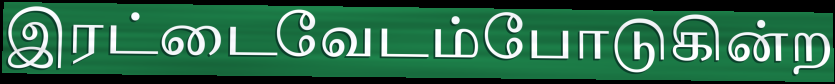
இரட்டைவேடம்போடுகின்ற